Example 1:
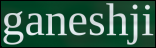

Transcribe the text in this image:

ganeshji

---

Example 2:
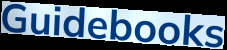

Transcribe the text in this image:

Guidebooks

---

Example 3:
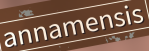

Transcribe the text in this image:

annamensis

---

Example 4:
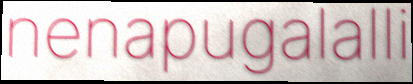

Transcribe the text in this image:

nenapugalalli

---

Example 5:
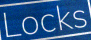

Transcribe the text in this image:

Locks